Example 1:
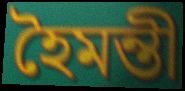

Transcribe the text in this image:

হৈমন্তী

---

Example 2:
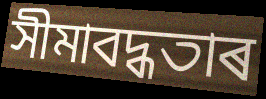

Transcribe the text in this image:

সীমাবদ্ধতাৰ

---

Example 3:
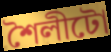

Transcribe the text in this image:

শৈলীটো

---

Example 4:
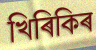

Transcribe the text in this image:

খিৰিকিৰ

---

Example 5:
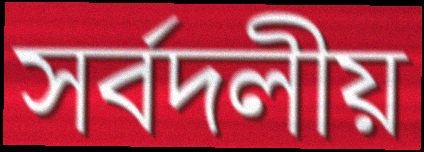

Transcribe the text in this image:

সৰ্বদলীয়